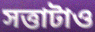
সত্তাটাও